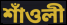
শাঁওলী